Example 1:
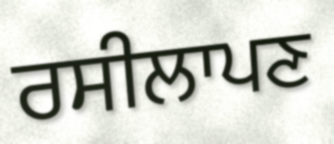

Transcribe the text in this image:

ਰਸੀਲਾਪਣ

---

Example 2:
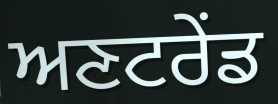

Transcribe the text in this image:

ਅਣਟਰੇਂਡ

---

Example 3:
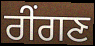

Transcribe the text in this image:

ਰੀਂਗਣ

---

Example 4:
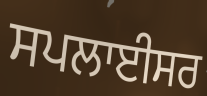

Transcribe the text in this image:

ਸਪਲਾਈਸਰ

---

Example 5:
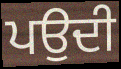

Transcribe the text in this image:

ਪਉਦੀ